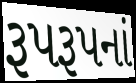
રૂપરૂપનાં